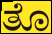
ತೊ